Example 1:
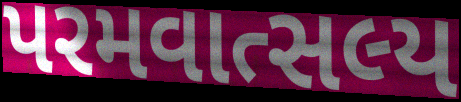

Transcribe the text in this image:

પરમવાત્સલ્ય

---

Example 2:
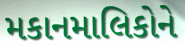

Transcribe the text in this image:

મકાનમાલિકોને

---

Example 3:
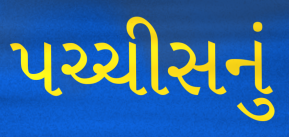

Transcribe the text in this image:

પચ્ચીસનું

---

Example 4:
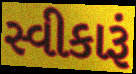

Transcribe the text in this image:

સ્વીકારૂં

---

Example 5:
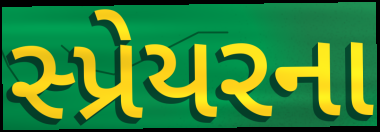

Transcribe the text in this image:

સ્પ્રેયરના